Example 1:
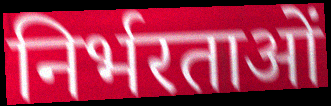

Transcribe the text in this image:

निर्भरताओं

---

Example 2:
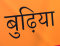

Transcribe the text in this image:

बुढ़िया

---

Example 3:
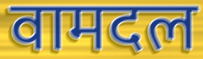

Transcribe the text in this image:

वामदल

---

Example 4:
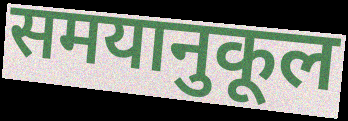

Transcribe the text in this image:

समयानुकूल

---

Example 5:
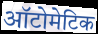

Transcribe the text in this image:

ऑटोमेटिक